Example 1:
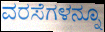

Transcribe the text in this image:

ವರಸೆಗಳನ್ನೂ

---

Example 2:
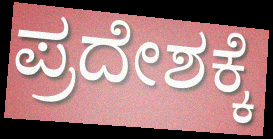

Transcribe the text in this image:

ಪ್ರದೇಶಕ್ಕೆ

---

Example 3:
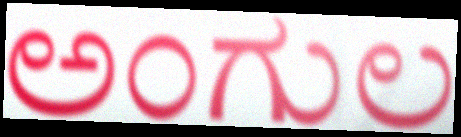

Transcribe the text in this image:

ಅಂಗುಲ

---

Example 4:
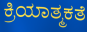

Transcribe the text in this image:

ಕ್ರಿಯಾತ್ಮಕತೆ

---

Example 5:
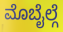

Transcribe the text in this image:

ಮೊಬೈಲ್ಗೆ